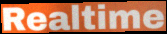
Realtime